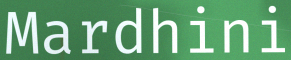
Mardhini